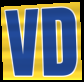
VD